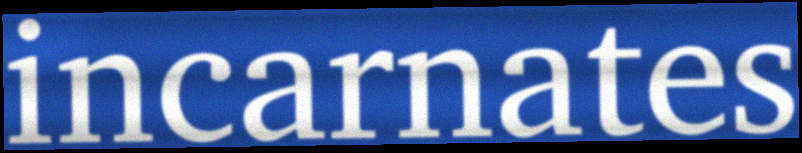
incarnates